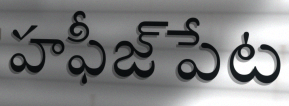
హఫీజ్‌పేట